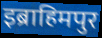
इब्राहिमपुर